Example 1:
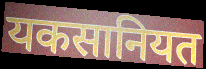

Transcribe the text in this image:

यकसानियत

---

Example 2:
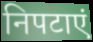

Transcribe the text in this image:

निपटाएं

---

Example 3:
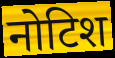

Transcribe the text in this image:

नोटिश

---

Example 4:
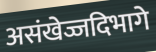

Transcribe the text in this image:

असंखेज्जदिभागे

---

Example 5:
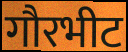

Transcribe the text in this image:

गौरभीट